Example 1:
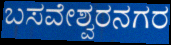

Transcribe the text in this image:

ಬಸವೇಶ್ವರನಗರ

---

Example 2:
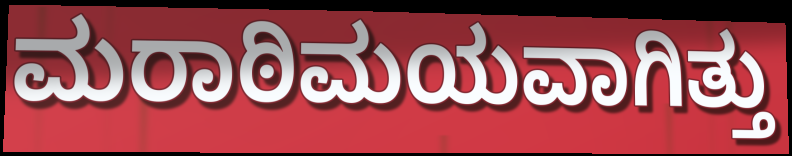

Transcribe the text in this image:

ಮರಾಠಿಮಯವಾಗಿತ್ತು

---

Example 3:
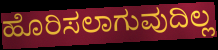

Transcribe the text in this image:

ಹೊರಿಸಲಾಗುವುದಿಲ್ಲ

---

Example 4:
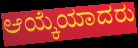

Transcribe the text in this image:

ಆಯ್ಕೆಯಾದರು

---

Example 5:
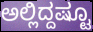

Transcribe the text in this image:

ಅಲ್ಲಿದ್ದಷ್ಟೂ